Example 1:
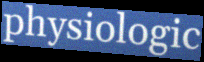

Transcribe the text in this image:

physiologic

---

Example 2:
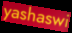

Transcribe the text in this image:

yashaswi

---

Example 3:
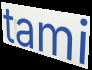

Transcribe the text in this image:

tami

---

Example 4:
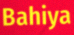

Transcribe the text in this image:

Bahiya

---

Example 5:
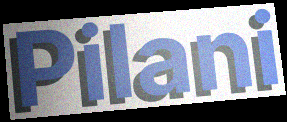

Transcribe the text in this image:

Pilani